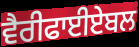
ਵੈਰੀਫਾਈਏਬਲ